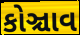
કોઞ્ચાવ